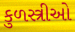
કુળસ્ત્રીઓ